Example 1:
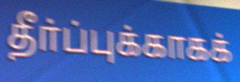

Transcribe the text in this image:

தீர்ப்புக்காகக்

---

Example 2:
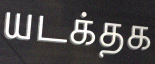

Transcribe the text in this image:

யடக்தக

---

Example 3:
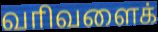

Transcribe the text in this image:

வரிவளைக்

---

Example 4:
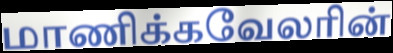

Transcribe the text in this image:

மாணிக்கவேலரின்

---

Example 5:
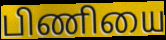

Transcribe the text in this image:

பிணியை